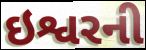
ઇશ્વરની